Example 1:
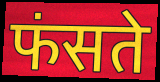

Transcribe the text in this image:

फंसते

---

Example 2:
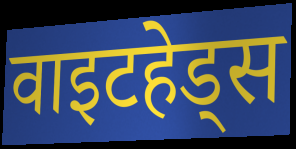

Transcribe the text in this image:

वाइटहेड्स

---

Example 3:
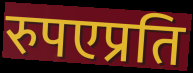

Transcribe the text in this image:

रुपएप्रति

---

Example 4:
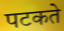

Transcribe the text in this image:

पटकते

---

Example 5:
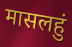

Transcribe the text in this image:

मासलहुं